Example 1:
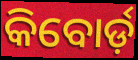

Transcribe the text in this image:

କିବୋର୍ଡ଼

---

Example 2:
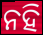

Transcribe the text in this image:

ନହି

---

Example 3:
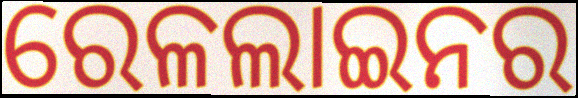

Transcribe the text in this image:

ରେଳଲାଇନର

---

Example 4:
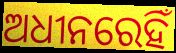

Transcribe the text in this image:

ଅଧୀନରେହିଁ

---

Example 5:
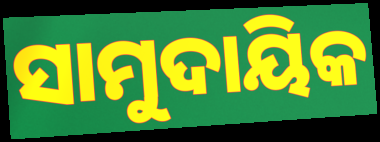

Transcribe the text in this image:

ସାମୁଦାୟିକ